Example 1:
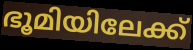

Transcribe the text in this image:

ഭൂമിയിലേക്ക്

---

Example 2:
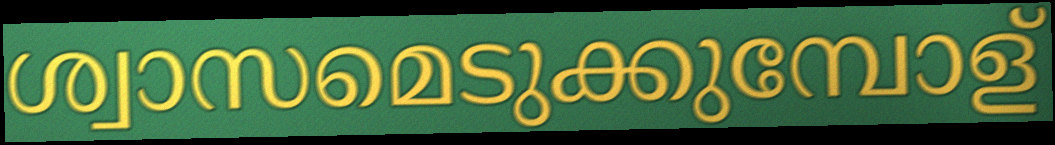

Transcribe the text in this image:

ശ്വാസമെടുക്കുമ്പോള്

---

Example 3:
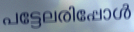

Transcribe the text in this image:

പട്ടേലരിപ്പോൾ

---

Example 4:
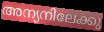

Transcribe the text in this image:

അന്യനിലേക്കു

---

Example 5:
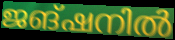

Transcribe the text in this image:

ജങ്ഷനിൽ